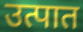
उत्पात